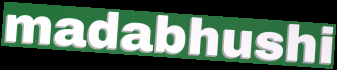
madabhushi